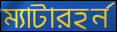
ম্যাটারহর্ন